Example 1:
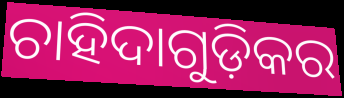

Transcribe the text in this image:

ଚାହିଦାଗୁଡ଼ିକର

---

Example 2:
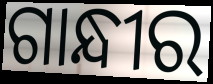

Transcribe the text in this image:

ଗାନ୍ଧୀର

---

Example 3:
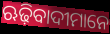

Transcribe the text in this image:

ଋଢ଼ିବାଦୀମାନେ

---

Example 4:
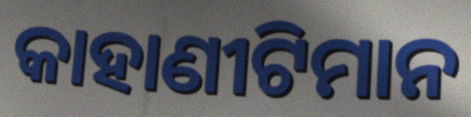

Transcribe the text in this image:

କାହାଣୀଟିମାନ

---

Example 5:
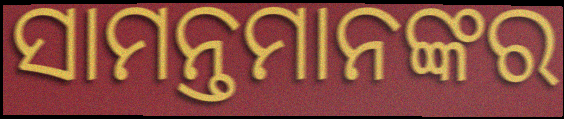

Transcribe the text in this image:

ସାମନ୍ତମାନଙ୍କର